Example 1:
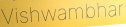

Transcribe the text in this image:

Vishwambhar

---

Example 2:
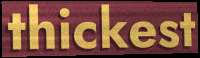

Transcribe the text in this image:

thickest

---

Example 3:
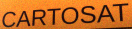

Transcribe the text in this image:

CARTOSAT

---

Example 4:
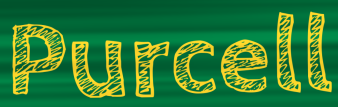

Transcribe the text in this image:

Purcell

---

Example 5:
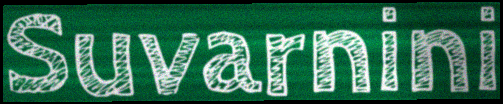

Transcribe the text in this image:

Suvarnini